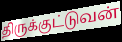
திருக்குட்டுவன்